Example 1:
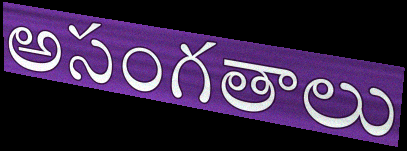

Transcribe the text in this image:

అసంగతాలు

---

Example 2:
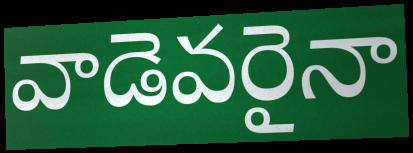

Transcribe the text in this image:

వాడెవరైనా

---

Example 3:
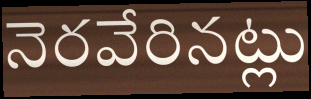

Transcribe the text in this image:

నెరవేరినట్లు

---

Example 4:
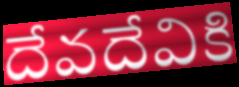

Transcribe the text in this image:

దేవదేవికి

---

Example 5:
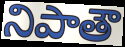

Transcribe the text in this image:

నిపాతౌ